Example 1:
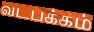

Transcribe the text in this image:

வடபக்கம்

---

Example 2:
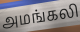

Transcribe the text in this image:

அமங்கலி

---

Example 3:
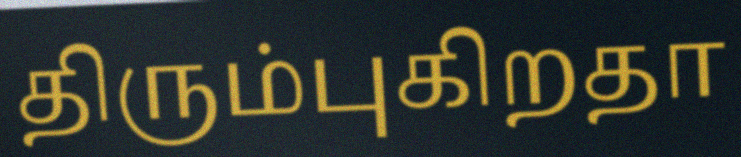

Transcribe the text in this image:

திரும்புகிறதா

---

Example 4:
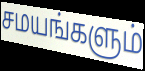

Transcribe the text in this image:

சமயங்களும்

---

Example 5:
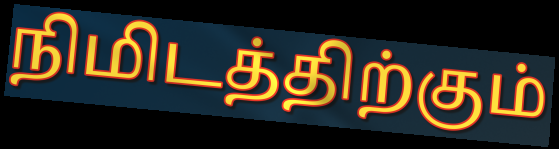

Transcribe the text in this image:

நிமிடத்திற்கும்